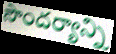
సౌందర్యాన్ని